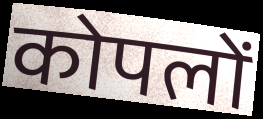
कोपलों